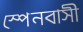
স্পেনবাসী